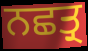
ਨਛਤ੍ਰ